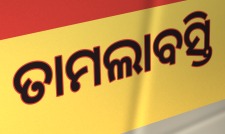
ତାମଲାବସ୍ତି